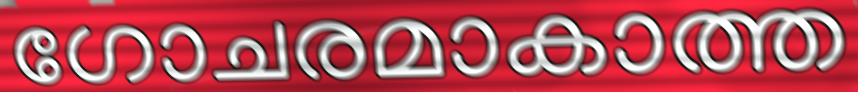
ഗോചരമാകാത്ത